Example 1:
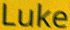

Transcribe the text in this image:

Luke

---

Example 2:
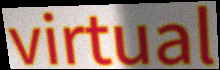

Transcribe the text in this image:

virtual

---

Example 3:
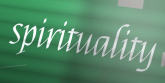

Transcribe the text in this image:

spirituality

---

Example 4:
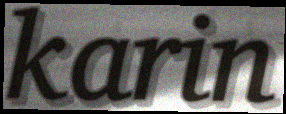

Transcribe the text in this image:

karin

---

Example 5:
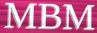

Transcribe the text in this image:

MBM